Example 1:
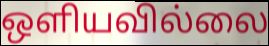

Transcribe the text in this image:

ஒளியவில்லை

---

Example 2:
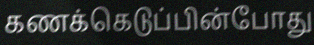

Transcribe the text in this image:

கணக்கெடுப்பின்போது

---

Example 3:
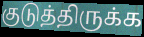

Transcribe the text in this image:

குடுத்திருக்க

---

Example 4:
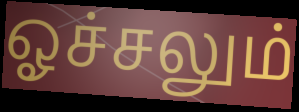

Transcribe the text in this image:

ஓச்சலும்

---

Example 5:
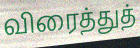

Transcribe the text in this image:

விரைத்துத்